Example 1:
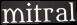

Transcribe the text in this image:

mitral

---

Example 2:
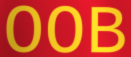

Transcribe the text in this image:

OOB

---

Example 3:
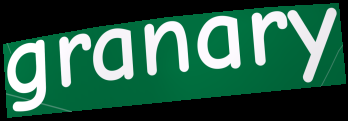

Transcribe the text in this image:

granary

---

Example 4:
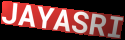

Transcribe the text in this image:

JAYASRI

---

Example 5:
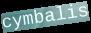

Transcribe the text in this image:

cymbalis